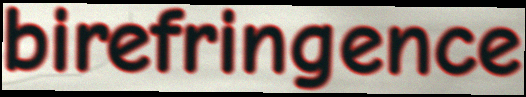
birefringence